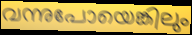
വന്നുപോയെങ്കിലും